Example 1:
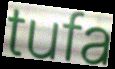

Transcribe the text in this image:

tufa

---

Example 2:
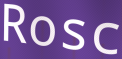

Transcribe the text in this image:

Rosc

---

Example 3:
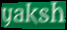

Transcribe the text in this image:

yaksh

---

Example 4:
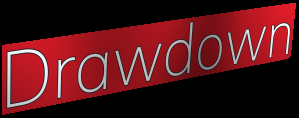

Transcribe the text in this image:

Drawdown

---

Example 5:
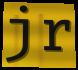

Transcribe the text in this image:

jr